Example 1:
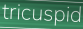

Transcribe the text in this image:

tricuspid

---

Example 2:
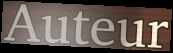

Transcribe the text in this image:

Auteur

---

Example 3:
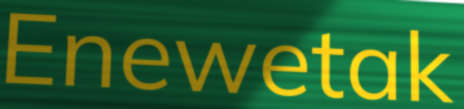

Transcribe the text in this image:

Enewetak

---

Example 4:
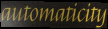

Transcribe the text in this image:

automaticity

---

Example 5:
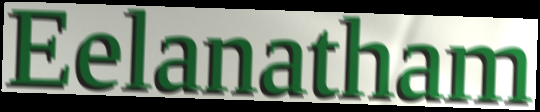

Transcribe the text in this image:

Eelanatham